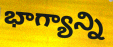
భాగ్యాన్ని